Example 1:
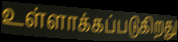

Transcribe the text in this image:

உள்ளாக்கப்படுகிறது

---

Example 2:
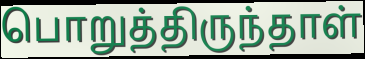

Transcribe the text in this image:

பொறுத்திருந்தாள்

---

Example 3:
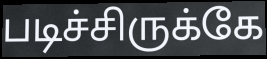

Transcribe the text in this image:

படிச்சிருக்கே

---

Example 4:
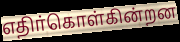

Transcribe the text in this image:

எதிர்கொள்கின்றன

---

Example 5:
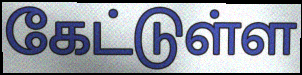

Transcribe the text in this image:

கேட்டுள்ள